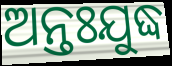
ଅନ୍ତଃଯୁଦ୍ଧ